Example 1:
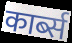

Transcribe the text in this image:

कार्ब्स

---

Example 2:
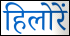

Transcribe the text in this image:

हिलोरें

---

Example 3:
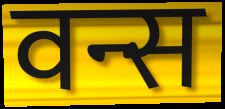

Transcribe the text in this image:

वन्स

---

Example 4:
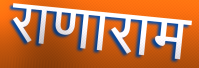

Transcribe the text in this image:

राणाराम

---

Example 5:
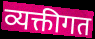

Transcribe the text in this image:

व्यक्तीगत